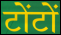
टोंटों